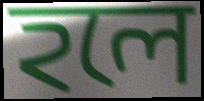
হলে